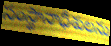
సంస్థానాధీశులను